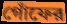
গোঁফের